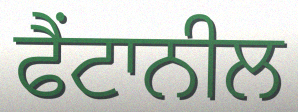
ਫੈਂਟਾਨੀਲ